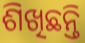
ଶିଖିଛନ୍ତି